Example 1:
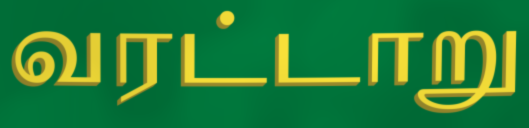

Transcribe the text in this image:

வரட்டாறு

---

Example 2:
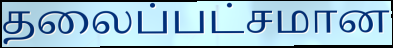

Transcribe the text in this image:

தலைப்பட்சமான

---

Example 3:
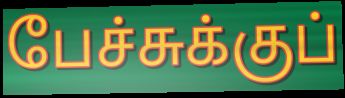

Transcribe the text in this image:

பேச்சுக்குப்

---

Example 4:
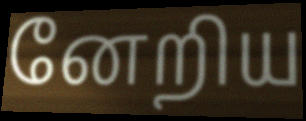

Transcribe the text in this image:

னேறிய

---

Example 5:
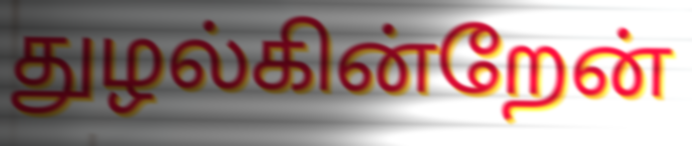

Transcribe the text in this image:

துழல்கின்றேன்